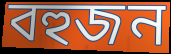
বহুজন